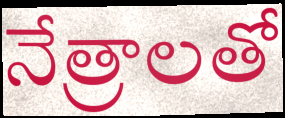
నేత్రాలతో